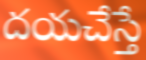
దయచేస్తే